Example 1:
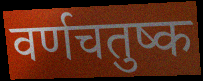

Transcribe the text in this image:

वर्णचतुष्क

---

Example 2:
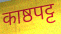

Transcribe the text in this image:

काष्ठपट्ट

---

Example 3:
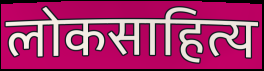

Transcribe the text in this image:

लोकसाहित्य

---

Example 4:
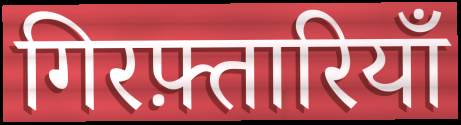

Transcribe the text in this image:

गिरफ़्तारियाँ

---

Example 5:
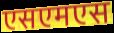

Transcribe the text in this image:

एसएमएस